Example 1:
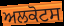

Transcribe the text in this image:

ਅਲਕੋਟਸ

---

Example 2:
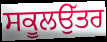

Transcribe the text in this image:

ਸਕੂਲਉੱਤਰ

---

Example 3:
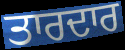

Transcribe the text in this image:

ਤਾਰਦਾਰ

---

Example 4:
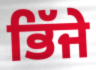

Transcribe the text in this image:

ਭਿੱਜੇ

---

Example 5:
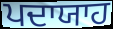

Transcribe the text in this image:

ਪਦਾਯਾਹ